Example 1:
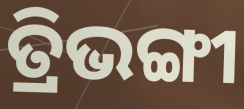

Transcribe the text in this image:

ତ୍ରିଭଙ୍ଗୀ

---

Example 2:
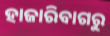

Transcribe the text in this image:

ହାଜାରିବାଗରୁ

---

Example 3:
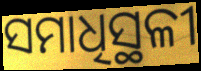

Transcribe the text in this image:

ସମାଧିସ୍ଥଳୀ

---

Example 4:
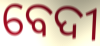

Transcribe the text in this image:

ବେଦୀ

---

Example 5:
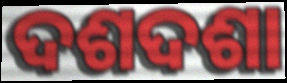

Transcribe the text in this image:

ଦଶଦଶା